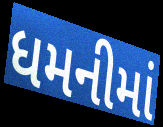
ધમનીમાં